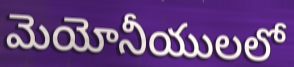
మెయోనీయులలో